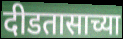
दीडतासाच्या